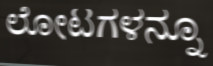
ಲೋಟಗಳನ್ನೂ